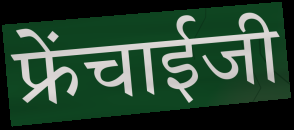
फ्रेंचाईजी